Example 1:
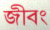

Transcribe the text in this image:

জীবং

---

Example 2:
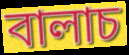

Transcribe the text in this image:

বালাচ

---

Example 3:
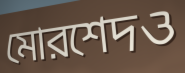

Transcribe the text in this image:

মোরশেদও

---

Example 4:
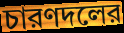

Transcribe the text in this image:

চারণদলের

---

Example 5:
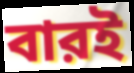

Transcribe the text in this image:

বারই